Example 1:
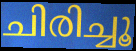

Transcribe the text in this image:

ചിരിച്ചൂ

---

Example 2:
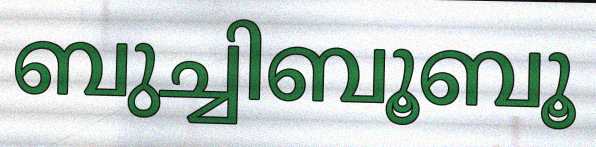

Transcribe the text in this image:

ബുച്ചിബൂബൂ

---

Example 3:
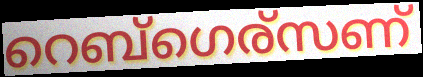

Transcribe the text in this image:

റെബ്ഗെര്സണ്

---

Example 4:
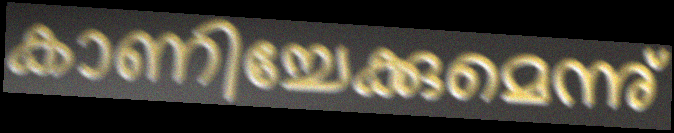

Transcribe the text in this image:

കാണിച്ചേക്കുമെന്നു്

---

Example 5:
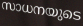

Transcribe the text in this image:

സാധനയുടെ